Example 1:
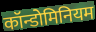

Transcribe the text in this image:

कॉन्डोमिनियम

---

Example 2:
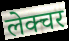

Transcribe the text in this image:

लेक्चर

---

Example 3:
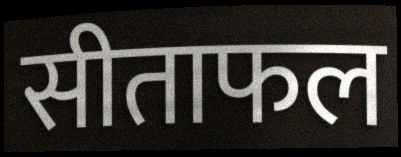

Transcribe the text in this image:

सीताफल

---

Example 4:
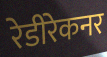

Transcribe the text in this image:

रेडीरेकनर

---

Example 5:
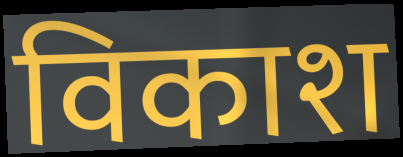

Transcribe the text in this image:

विकाश